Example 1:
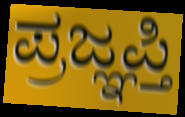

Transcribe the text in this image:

ಪ್ರಜ್ಞಪ್ತಿ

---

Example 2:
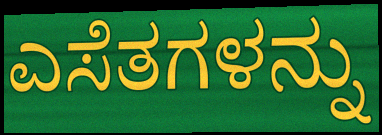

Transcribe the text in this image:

ಎಸೆತಗಳನ್ನು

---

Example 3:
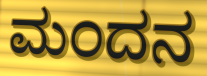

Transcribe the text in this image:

ಮಂದನ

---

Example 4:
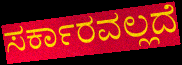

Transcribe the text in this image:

ಸರ್ಕಾರವಲ್ಲದೆ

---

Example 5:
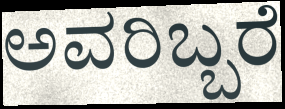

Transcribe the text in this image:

ಅವರಿಬ್ಬರೆ